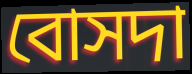
বোসদা